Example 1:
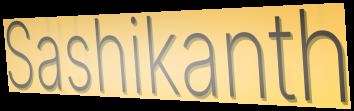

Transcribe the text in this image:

Sashikanth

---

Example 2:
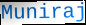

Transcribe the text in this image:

Muniraj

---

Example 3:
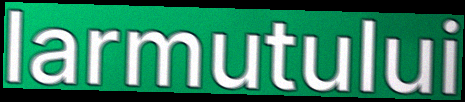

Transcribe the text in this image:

Iarmutului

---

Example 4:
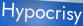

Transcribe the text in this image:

Hypocrisy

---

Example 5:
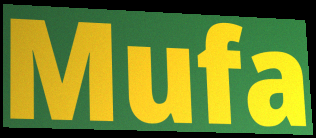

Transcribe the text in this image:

Mufa